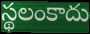
స్థలంకాదు